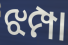
ଝମ୍ପା